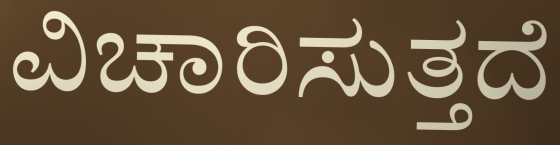
ವಿಚಾರಿಸುತ್ತದೆ